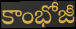
కాంభోజీ